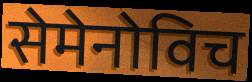
सेमेनोविच